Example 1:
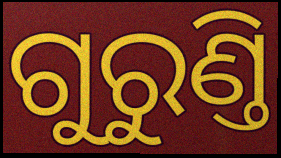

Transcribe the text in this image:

ଗୁରୁଣ୍ତି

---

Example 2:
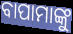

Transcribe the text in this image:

ବାପାମାଙ୍କୁ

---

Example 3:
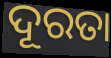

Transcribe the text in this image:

ଦୂରତା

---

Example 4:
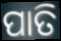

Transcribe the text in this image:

ପାତି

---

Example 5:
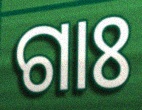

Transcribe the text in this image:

ଗାଃ